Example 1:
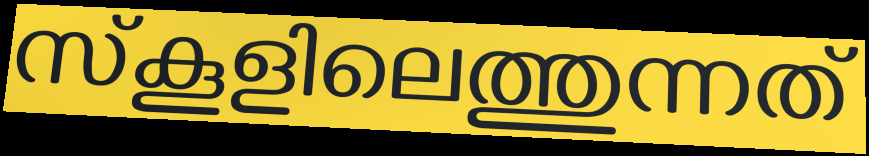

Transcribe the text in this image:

സ്‌കൂളിലെത്തുന്നത്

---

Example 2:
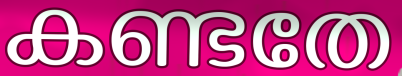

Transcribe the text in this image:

കണ്ടതേ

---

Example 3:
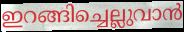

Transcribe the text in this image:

ഇറങ്ങിച്ചെല്ലുവാൻ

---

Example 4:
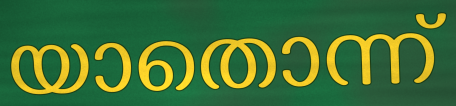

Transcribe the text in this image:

യാതൊന്ന്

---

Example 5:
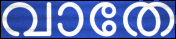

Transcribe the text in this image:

വാതേ